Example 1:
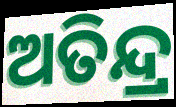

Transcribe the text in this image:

ଅତିନ୍ଦ୍ର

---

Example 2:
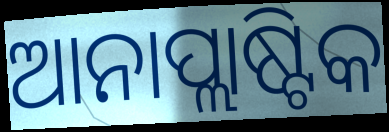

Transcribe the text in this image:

ଆନାପ୍ଲାଷ୍ଟିକ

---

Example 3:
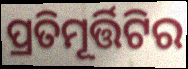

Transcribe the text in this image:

ପ୍ରତିମୂର୍ତ୍ତିଟିର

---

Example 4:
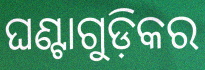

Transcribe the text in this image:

ଘଣ୍ଟାଗୁଡ଼ିକର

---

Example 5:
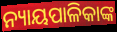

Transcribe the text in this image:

ନ୍ୟାୟପାଳିକାଙ୍କ